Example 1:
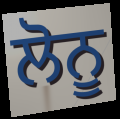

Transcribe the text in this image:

ਲੋਨੂ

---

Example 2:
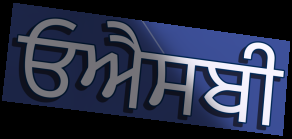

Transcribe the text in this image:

ਓਐਸਬੀ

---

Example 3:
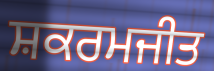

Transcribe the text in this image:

ਸ਼ਕਰਮਜੀਤ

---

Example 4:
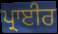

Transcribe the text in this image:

ਪ੍ਰਾਈਰ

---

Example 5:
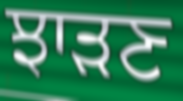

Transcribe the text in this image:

ਝਾੜਣ